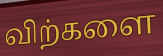
விற்களை